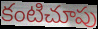
కంటిచూపు